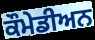
ਕੌਮੇਡੀਅਨ